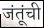
जंतूंची